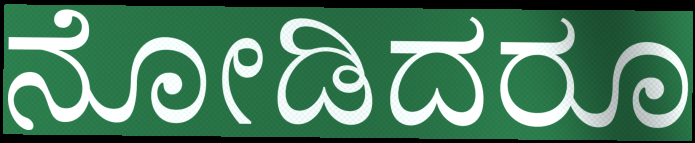
ನೋಡಿದರೂ